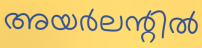
അയർലന്റിൽ